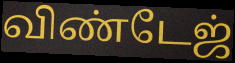
விண்டேஜ்